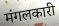
मंगलकारी